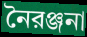
নৈরঞ্জনা